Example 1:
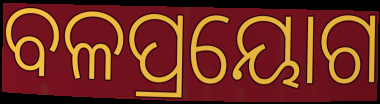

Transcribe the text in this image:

ବଳପ୍ରୟୋଗ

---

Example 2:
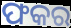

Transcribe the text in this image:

ଫକର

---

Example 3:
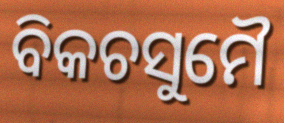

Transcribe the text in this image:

ବିକଚସୁମୈ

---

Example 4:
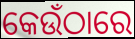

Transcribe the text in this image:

କେଉଁଠାରେ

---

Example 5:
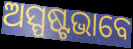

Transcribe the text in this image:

ଅସ୍ପଷ୍ଟଭାବେ